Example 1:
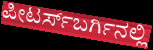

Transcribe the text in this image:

ಪೀಟರ್ಸ್‍ಬರ್ಗಿನಲ್ಲಿ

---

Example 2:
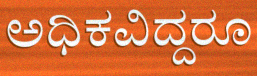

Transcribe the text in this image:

ಅಧಿಕವಿದ್ದರೂ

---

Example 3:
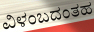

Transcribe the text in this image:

ವಿಳಂಬದಂತಹ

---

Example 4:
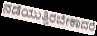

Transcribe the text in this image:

ನಡೆಯುತ್ತಿರಬೇಕಾದರೆ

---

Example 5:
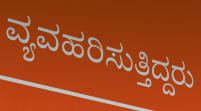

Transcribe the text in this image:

ವ್ಯವಹರಿಸುತ್ತಿದ್ದರು